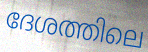
ദേശത്തിലെ